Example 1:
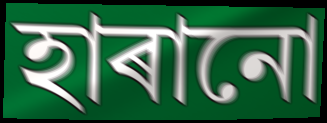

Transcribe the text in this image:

হাৰানো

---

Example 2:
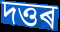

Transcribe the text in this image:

দত্তৰ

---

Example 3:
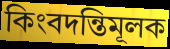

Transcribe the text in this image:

কিংবদন্তিমূলক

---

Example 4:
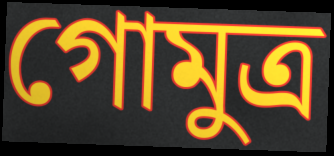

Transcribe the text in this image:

গোমুত্ৰ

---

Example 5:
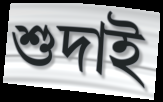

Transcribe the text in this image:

শুদাই